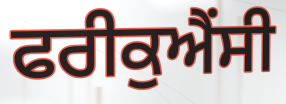
ਫਰੀਕੁਐਂਸੀ